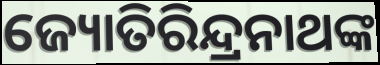
ଜ୍ୟୋତିରିନ୍ଦ୍ରନାଥଙ୍କ